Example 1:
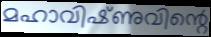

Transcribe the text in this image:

മഹാവിഷ്‌ണുവിന്റെ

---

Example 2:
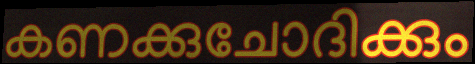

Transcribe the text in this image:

കണക്കുചോദിക്കും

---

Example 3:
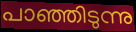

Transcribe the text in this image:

പാഞ്ഞിടുന്നു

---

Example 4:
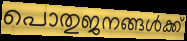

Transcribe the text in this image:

പൊതുജനങ്ങൾക്ക്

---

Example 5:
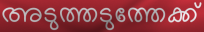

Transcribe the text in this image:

അടുത്തടുത്തേക്ക്